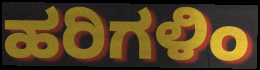
ಹರಿಗಳಿಂ